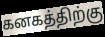
கனகத்திற்கு